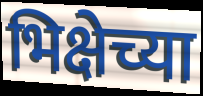
भिक्षेच्या